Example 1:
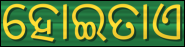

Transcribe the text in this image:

ହୋଇତାଏ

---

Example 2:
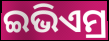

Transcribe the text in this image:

ଇଭିଏମ୍ର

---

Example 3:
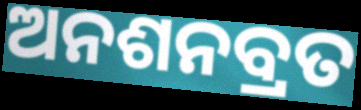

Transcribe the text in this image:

ଅନଶନବ୍ରତ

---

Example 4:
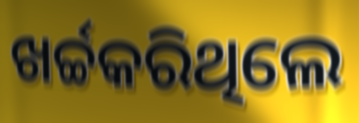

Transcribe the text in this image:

ଖର୍ଚ୍ଚକରିଥିଲେ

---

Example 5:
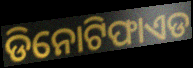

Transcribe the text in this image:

ଡିନୋଟିଫାଏଡ